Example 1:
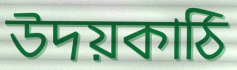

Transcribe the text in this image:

উদয়কাঠি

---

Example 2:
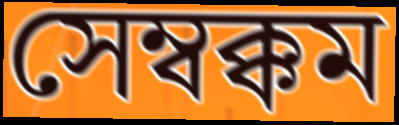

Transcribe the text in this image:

সেম্বক্কম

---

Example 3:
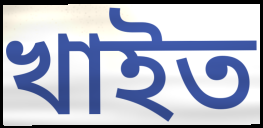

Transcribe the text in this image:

খাইত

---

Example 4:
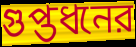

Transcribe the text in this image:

গুপ্তধনের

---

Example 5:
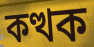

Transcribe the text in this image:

কত্থক